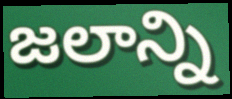
జలాన్ని